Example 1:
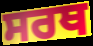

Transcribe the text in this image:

ਸਰਥ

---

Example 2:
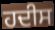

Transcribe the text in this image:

ਹਦੀਸ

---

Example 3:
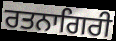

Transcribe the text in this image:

ਰਤਨਾਗਿਰੀ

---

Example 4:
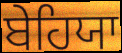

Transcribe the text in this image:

ਬੇਹਿਯਾ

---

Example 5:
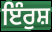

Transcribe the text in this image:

ਇੰਰੁਸ਼